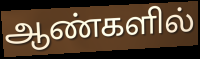
ஆண்களில்